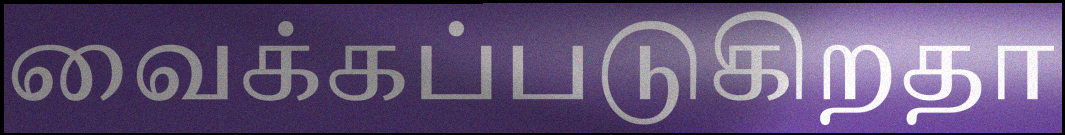
வைக்கப்படுகிறதா